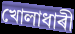
খোলাধাৰী